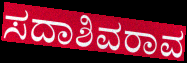
ಸದಾಶಿವರಾವ